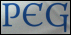
PEG